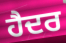
ਹੈਦਰ